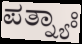
ಪತ್ನ್ಯಾಃ